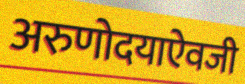
अरुणोदयाऐवजी